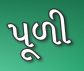
પૂળી